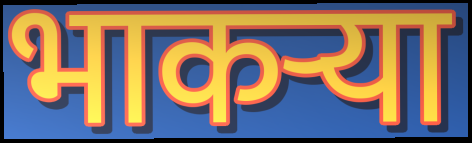
भाकर्‍या